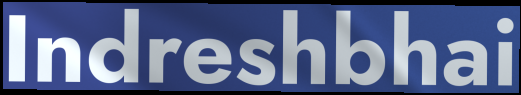
Indreshbhai